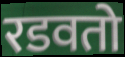
रडवतो